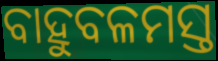
ବାହୁବଳମସ୍ତ